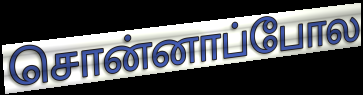
சொன்னாப்போல